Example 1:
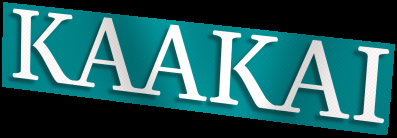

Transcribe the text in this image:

KAAKAI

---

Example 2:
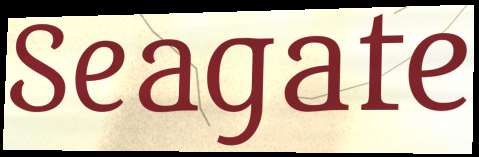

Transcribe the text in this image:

Seagate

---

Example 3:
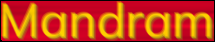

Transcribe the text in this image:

Mandram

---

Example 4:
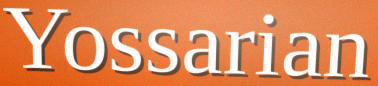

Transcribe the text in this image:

Yossarian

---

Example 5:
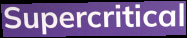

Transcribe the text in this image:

Supercritical